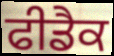
ਫੀਡੈਕ